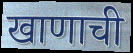
खाणाची